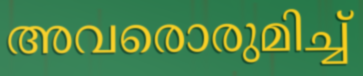
അവരൊരുമിച്ച്